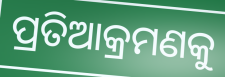
ପ୍ରତିଆକ୍ରମଣକୁ